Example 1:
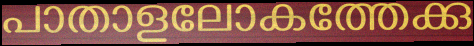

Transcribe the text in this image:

പാതാളലോകത്തേക്കു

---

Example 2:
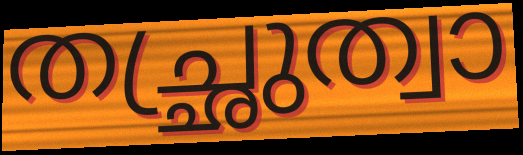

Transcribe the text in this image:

തച്ഛ്രുത്വാ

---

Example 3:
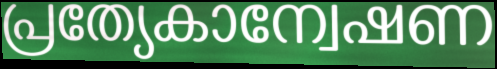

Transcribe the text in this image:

പ്രത്യേകാന്വേഷണ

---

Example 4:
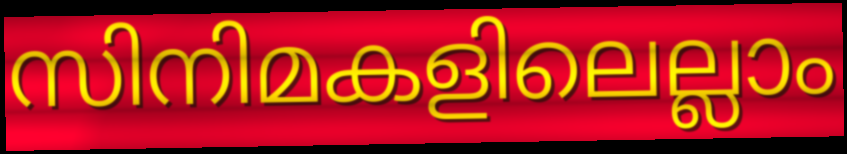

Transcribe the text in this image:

സിനിമകളിലെല്ലാം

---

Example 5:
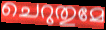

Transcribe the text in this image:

ചെറുതുമേ